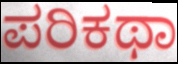
ಪರಿಕಥಾ